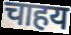
चाहय